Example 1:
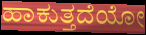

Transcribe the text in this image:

ಹಾಕುತ್ತದೆಯೋ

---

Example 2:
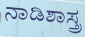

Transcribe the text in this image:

ನಾಡಿಶಾಸ್ತ್ರ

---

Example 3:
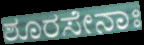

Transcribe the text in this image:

ಶೂರಸೇನಾಃ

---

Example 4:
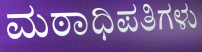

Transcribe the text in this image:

ಮಠಾಧಿಪತಿಗಳು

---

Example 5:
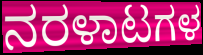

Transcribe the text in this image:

ನರಳಾಟಗಳ